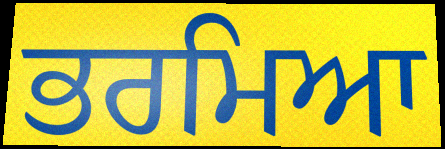
ਭਰਮਿਆ